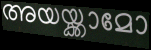
അയയ്ക്കാമോ